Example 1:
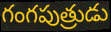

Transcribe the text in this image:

గంగపుత్రుడు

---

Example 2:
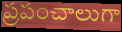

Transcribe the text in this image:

ప్రపంచాలుగా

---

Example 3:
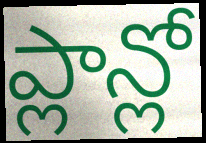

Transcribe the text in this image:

ప్లాన్లో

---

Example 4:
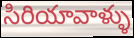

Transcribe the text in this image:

సిరియావాళ్ళు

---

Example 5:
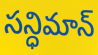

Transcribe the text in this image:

సన్ధిమాన్